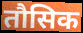
तौसिक